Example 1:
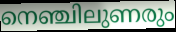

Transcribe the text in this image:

നെഞ്ചിലുണരും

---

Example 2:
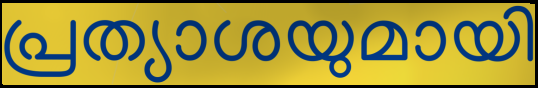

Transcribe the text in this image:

പ്രത്യാശയുമായി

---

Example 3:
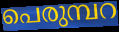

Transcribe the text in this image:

പെരുമ്പറ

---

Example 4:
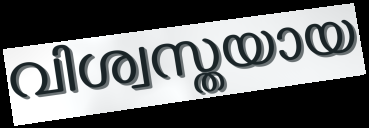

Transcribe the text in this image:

വിശ്വസ്തയായ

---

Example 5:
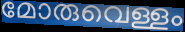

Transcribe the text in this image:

മോരുവെള്ളം